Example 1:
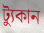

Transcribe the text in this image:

ট্যুকান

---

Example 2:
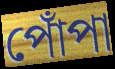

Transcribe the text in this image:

পোঁপা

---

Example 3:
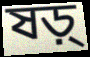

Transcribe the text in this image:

ষড়্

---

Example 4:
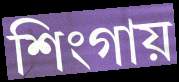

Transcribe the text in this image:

শিংগায়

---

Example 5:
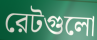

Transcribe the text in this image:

রেটগুলো